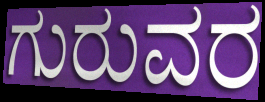
ಗುರುವರ